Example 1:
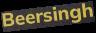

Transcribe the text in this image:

Beersingh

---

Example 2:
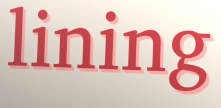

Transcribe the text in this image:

lining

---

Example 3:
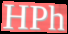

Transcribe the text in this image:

HPh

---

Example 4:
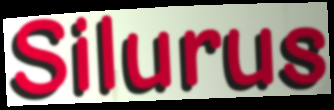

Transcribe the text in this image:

Silurus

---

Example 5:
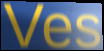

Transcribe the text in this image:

Ves